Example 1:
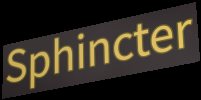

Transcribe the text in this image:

Sphincter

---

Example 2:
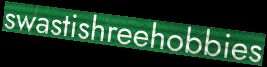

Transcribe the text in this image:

swastishreehobbies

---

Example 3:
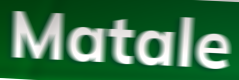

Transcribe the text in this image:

Matale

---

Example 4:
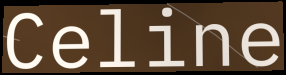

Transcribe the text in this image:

Celine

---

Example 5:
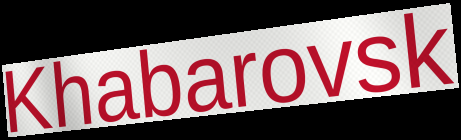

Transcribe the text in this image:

Khabarovsk